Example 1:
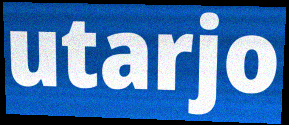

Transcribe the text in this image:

utarjo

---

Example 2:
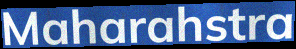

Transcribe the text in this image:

Maharahstra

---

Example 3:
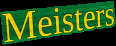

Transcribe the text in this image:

Meisters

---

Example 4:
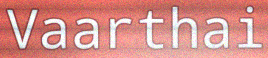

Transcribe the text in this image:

Vaarthai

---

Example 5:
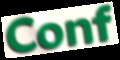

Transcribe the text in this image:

Conf